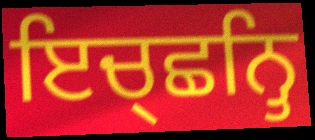
ਇਚ੍ਛਨ੍ਤਿ